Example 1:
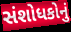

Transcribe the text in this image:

સંશોધકોનું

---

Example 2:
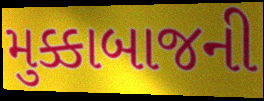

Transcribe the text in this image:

મુક્કાબાજની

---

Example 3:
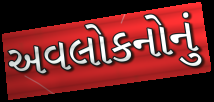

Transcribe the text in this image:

અવલોકનોનું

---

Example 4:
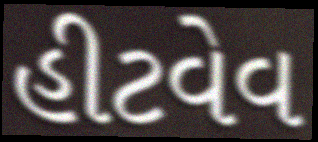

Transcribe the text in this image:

હીટવેવ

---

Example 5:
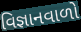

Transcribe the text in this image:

વિજ્ઞાનવાળો